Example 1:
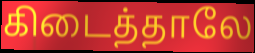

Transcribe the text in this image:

கிடைத்தாலே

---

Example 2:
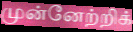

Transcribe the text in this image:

முன்னேற்றிக்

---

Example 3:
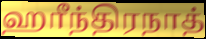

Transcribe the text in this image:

ஹரீந்திரநாத்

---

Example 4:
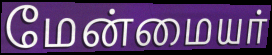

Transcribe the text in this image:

மேன்மையர்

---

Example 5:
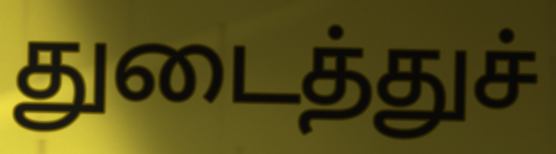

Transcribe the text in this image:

துடைத்துச்